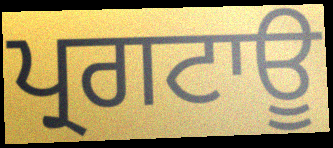
ਪ੍ਰਗਟਾਊ